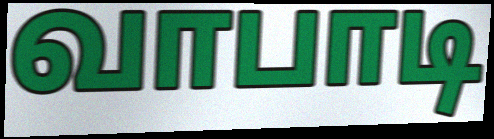
வாபாடி